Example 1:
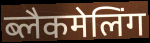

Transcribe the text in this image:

ब्लैकमेलिंग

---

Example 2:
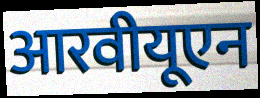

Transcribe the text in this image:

आरवीयूएन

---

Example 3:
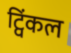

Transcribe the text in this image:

ट्विंकल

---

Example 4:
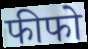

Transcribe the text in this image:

फीफो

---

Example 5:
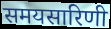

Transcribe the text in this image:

समयसारिणी